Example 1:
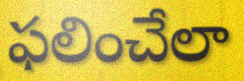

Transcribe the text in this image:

ఫలించేలా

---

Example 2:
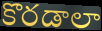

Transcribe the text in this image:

కొరడాలా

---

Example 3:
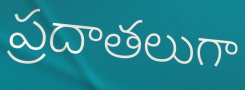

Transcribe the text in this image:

ప్రదాతలుగా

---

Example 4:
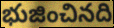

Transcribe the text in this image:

భుజించినది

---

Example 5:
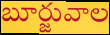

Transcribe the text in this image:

బూర్జువాల